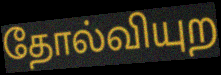
தோல்வியுற